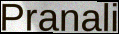
Pranali